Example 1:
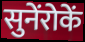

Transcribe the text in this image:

सुनेंरोकें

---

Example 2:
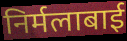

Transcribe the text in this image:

निर्मलाबाई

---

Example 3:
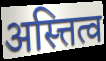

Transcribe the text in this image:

अस्त्तित्व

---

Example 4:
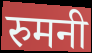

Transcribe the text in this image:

रुमनी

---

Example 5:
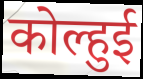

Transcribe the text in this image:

कोल्हुई